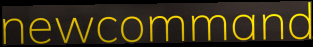
newcommand